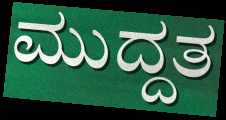
ಮುದ್ದತ